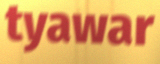
tyawar